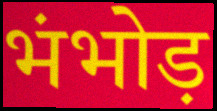
भंभोड़